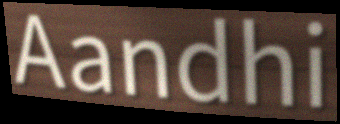
Aandhi